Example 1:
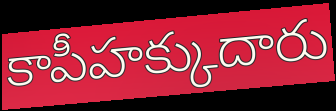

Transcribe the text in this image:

కాపీహక్కుదారు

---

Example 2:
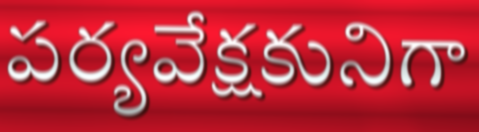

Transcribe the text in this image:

పర్యవేక్షకునిగా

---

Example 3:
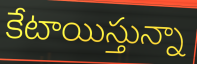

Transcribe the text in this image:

కేటాయిస్తున్నా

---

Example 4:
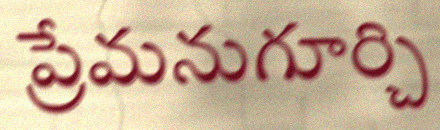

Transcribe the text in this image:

ప్రేమనుగూర్చి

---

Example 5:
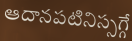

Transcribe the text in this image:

ఆదానపటినిస్సగ్గే